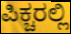
ಪಿಕ್ಚರಲ್ಲಿ